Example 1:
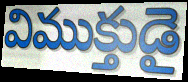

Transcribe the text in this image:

విముక్తుడై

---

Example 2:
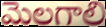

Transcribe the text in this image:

మెలగాలి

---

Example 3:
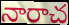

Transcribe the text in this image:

నారాచ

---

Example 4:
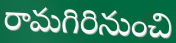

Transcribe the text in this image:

రామగిరినుంచి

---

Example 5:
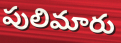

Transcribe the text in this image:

పులిమారు